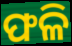
ଫଳି